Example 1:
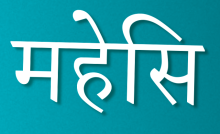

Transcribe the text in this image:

महेसि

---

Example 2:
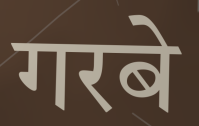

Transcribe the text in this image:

गरबे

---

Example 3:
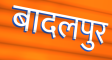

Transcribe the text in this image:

बादलपुर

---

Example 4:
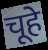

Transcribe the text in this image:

चूहे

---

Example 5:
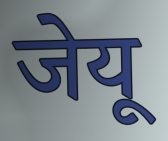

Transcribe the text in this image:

जेयू